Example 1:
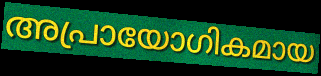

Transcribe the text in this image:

അപ്രായോഗികമായ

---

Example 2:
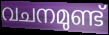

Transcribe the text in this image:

വചനമുണ്ട്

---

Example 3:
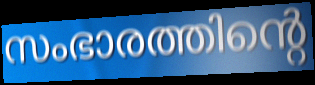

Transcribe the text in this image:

സംഭാരത്തിന്റെ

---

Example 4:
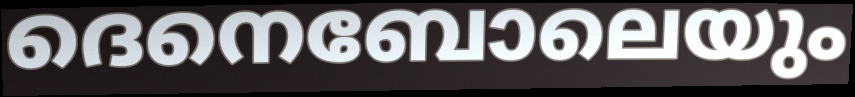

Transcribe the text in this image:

ദെനെബോലെയും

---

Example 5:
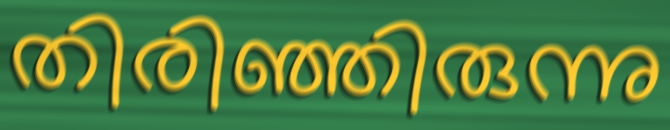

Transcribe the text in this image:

തിരിഞ്ഞിരുന്നു